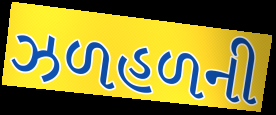
ઝળહળની